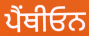
ਪੈਂਥੀਓਨ